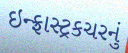
ઇન્ફ્રાસ્ટ્રકચરનું